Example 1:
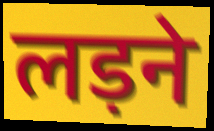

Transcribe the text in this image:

लड़ने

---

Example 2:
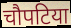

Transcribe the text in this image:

चौपटिया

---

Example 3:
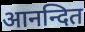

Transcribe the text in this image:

आनन्दित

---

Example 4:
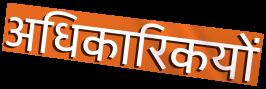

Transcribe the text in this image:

अधिकारिकयों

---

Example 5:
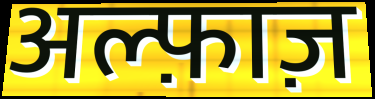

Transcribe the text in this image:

अल्फ़ाज़